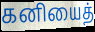
கனியைத்